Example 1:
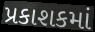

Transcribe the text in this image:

પ્રકાશકમાં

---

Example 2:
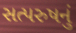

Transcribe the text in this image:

સત્પરુષનું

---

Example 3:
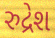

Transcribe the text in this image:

રુદ્રેશ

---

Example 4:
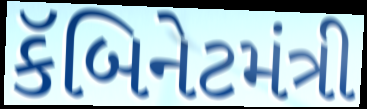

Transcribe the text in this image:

કૅબિનેટમંત્રી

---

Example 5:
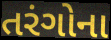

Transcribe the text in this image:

તરંગોના